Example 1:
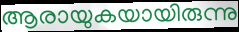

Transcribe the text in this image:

ആരായുകയായിരുന്നു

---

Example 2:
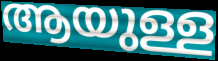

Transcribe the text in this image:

ആയുള്ള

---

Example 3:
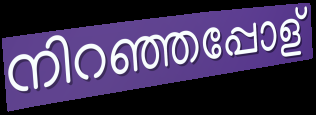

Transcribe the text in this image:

നിറഞ്ഞപ്പോള്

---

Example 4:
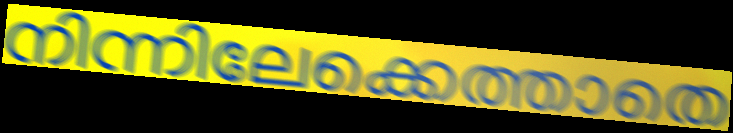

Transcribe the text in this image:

നിന്നിലേക്കെത്താതെ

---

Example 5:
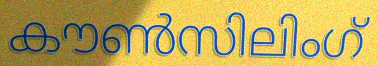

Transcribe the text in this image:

കൗൺസിലിംഗ്